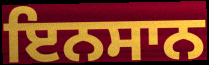
ਇਨਸਾਨ